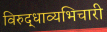
विरुद्धाव्यभिचारी